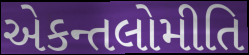
એકન્તલોમીતિ